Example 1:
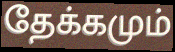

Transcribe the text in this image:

தேக்கமும்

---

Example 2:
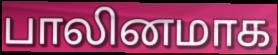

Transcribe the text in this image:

பாலினமாக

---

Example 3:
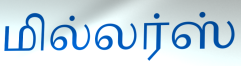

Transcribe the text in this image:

மில்லர்ஸ்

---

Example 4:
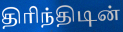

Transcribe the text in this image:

திரிந்திடின்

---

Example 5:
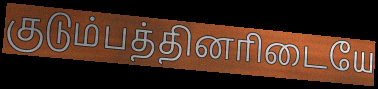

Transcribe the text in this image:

குடும்பத்தினரிடையே